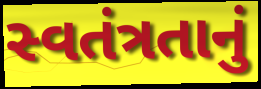
સ્વતંત્રતાનું